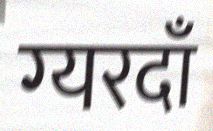
ग्यरदाँ